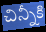
చిన్నీకి